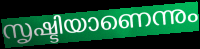
സൃഷ്ടിയാണെന്നും